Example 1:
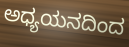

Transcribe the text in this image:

ಅಧ್ಯಯನದಿಂದ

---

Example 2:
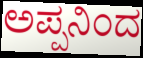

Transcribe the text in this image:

ಅಪ್ಪನಿಂದ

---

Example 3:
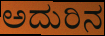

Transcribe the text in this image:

ಅದುರಿನ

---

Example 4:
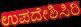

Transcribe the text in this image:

ಉಪದೇಶಿಸಿರಿ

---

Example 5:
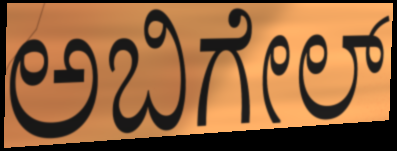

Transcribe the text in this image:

ಅಬಿಗೇಲ್